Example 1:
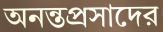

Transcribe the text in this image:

অনন্তপ্রসাদের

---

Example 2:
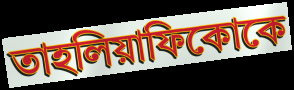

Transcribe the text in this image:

তাহলিয়াফিকোকে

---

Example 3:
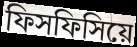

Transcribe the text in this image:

ফিসফিসিয়ে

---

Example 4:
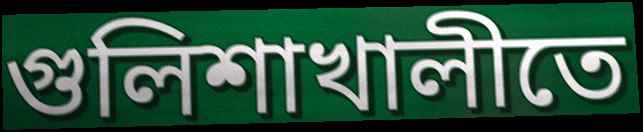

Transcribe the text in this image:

গুলিশাখালীতে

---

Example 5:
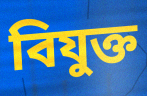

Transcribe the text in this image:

বিযুক্ত